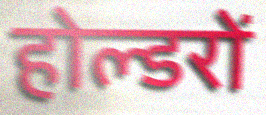
होल्डरों